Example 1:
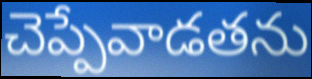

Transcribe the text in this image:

చెప్పేవాడతను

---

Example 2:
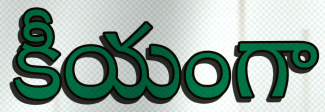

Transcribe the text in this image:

కీయంగా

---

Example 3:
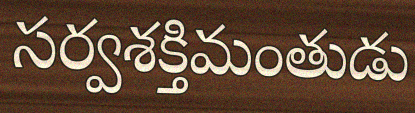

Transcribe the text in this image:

సర్వశక్తిమంతుడు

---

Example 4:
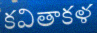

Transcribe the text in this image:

కవితాకళ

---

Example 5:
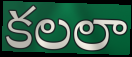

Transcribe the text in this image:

కలలా